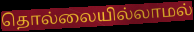
தொல்லையில்லாமல்